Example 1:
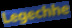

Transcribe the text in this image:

Legechhe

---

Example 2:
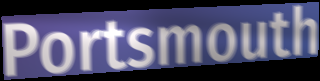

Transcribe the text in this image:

Portsmouth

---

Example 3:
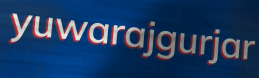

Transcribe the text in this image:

yuwarajgurjar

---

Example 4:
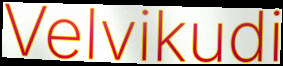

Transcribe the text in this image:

Velvikudi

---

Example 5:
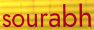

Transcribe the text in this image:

sourabh